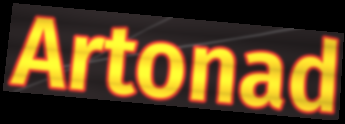
Artonad